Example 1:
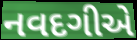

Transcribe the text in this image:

નવદગીએ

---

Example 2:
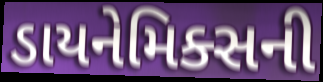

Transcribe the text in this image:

ડાયનેમિક્સની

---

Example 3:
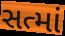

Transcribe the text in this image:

સત્માં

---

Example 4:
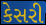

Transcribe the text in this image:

કેસરી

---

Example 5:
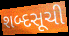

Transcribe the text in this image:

શબ્દસૂચી